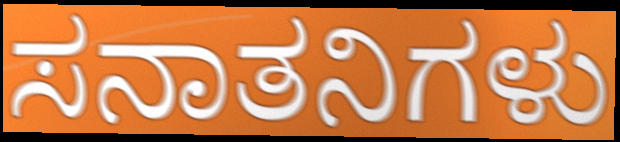
ಸನಾತನಿಗಳು